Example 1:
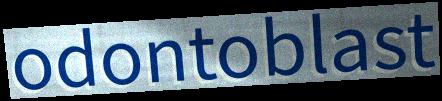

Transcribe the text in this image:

odontoblast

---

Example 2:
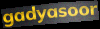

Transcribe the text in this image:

gadyasoor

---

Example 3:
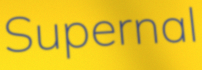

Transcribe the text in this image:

Supernal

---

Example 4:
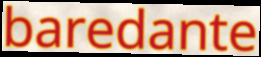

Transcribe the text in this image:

baredante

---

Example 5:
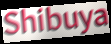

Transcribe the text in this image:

Shibuya